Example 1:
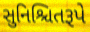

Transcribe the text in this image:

સુનિશ્ચિતરૂપે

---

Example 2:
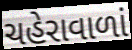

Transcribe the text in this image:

ચહેરાવાળાં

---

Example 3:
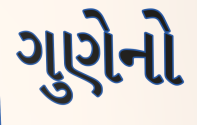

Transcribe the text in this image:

ગુણેનો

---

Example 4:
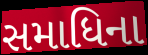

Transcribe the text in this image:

સમાધિના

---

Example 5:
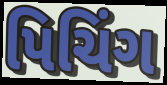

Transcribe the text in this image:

પિચિંગ